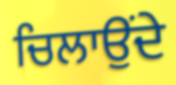
ਚਿਲਾਉਂਦੇ